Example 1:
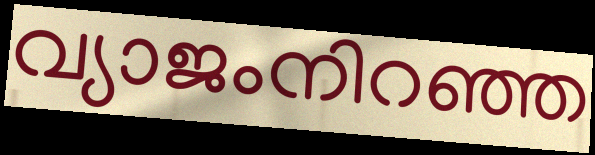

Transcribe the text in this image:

വ്യാജംനിറഞ്ഞ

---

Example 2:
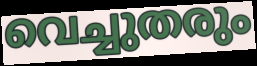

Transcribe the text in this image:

വെച്ചുതരും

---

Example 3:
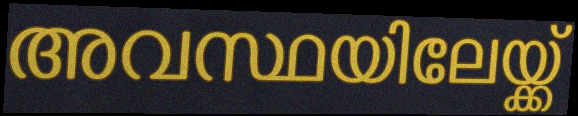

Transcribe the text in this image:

അവസ്ഥയിലേയ്ക്ക്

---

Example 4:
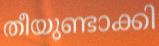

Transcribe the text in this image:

തീയുണ്ടാക്കി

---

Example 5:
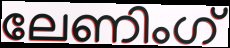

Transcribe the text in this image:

ലേണിംഗ്